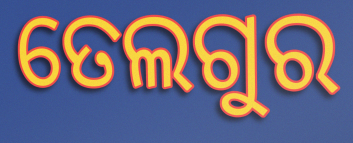
ତେଲଗୁର